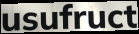
usufruct